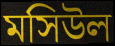
মসিউল